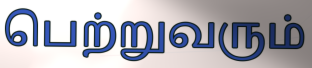
பெற்றுவரும்